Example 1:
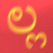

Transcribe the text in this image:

ಲ್ಲ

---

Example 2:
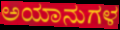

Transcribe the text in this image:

ಅಯಾನುಗಳ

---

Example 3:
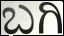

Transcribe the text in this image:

ಬಗಿ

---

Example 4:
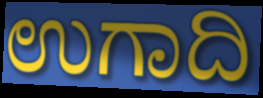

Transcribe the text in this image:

ಉಗಾದಿ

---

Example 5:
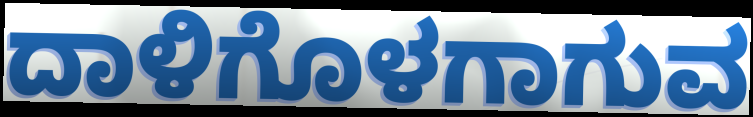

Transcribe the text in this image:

ದಾಳಿಗೊಳಗಾಗುವ